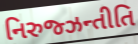
નિરુજ્ઝન્તીતિ